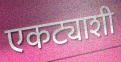
एकट्याशी